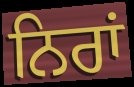
ਨਿਰਾਂ